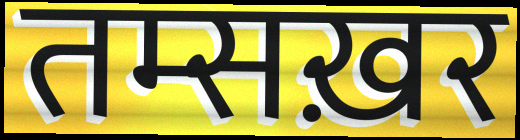
तम्सख़र